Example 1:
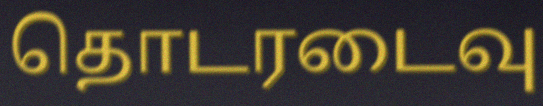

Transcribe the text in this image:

தொடரடைவு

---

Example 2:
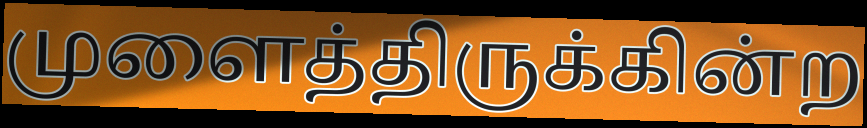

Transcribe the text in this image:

முளைத்திருக்கின்ற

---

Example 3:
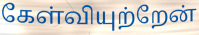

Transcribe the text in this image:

கேள்வியுற்றேன்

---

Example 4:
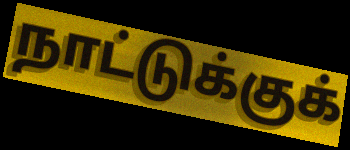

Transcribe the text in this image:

நாட்டுக்குக்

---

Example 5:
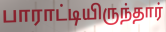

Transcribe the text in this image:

பாராட்டியிருந்தார்